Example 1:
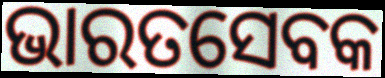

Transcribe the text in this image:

ଭାରତସେବକ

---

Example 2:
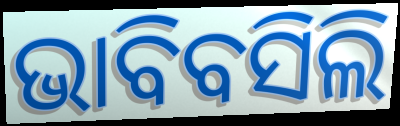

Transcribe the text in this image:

ଭାବିବସିଲି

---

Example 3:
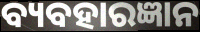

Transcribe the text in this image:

ବ୍ୟବହାରଜ୍ଞାନ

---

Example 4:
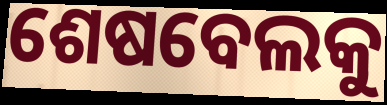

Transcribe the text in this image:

ଶେଷବେଲକୁ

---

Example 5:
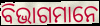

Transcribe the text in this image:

ବିଭାଗମାନେ